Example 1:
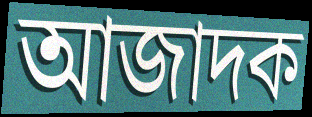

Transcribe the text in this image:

আজাদক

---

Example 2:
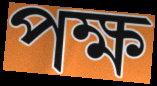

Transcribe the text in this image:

পক্ষ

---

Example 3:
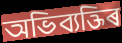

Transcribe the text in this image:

অভিব্যক্তিৰ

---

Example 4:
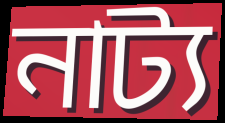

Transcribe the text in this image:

নাট্য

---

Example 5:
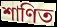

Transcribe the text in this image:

শাণিত